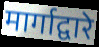
मार्गाद्वारे